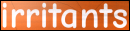
irritants